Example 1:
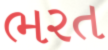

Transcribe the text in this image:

ભરત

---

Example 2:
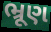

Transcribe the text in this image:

ભ્રૂણ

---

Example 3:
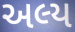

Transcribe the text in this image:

અલ્ય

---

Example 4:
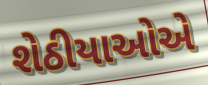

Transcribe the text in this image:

શેઠીયાઓએ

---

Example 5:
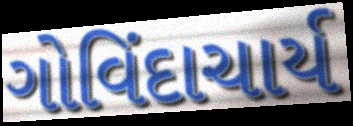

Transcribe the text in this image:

ગોવિંદાચાર્ય